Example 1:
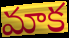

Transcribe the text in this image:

మాక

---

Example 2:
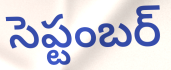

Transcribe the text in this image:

సెప్టంబర్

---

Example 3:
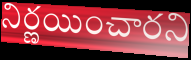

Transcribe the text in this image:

నిర్ణయించారని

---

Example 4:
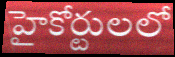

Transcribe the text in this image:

హైకోర్టులలో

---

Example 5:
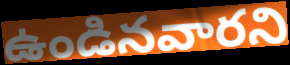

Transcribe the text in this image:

ఉండినవారని